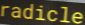
radicle